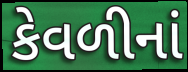
કેવળીનાં